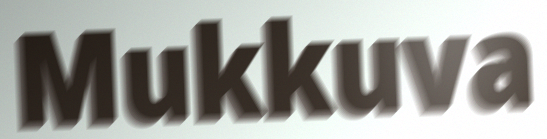
Mukkuva